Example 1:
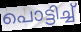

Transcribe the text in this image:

പൊട്ടിച്ച്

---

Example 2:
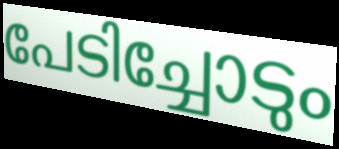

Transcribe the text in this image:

പേടിച്ചോടും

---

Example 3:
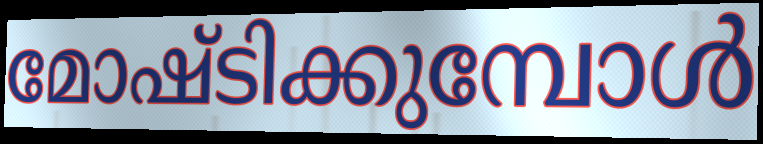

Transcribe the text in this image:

മോഷ്ടിക്കുമ്പോൾ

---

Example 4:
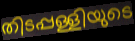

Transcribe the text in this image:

തിടപ്പള്ളിയുടെ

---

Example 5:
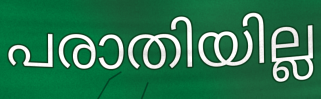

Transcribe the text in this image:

പരാതിയില്ല